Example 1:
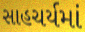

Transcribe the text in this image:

સાહચર્યમાં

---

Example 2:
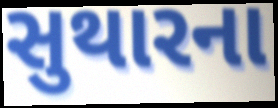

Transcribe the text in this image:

સુથારના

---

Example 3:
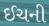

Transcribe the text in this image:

ઈચની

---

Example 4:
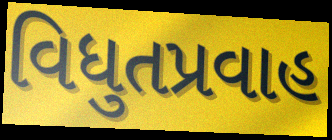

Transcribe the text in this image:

વિધુતપ્રવાહ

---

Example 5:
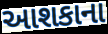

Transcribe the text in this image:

આશકાના